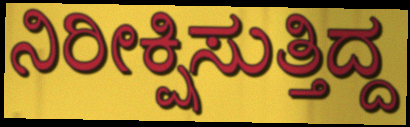
ನಿರೀಕ್ಷಿಸುತ್ತಿದ್ದ